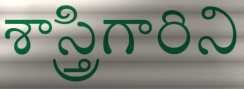
శాస్త్రిగారిని